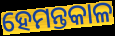
ହେମନ୍ତକାଳ